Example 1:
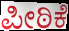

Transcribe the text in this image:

ಪೀಠಿಕೆ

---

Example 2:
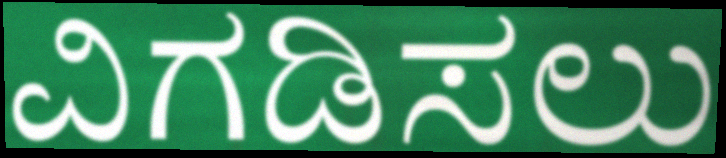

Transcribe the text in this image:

ವಿಗಡಿಸಲು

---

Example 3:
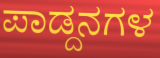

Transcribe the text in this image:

ಪಾಡ್ದನಗಳ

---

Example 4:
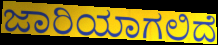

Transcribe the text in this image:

ಜಾರಿಯಾಗಲಿದೆ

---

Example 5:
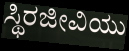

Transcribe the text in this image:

ಸ್ಥಿರಜೀವಿಯು